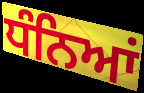
ਧੰਨਿਆਂ